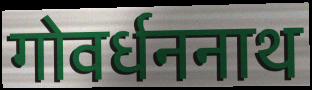
गोवर्धननाथ